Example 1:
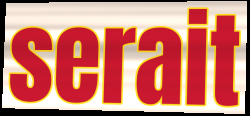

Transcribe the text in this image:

serait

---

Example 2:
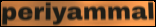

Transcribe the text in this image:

periyammal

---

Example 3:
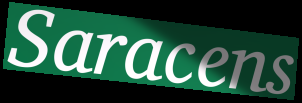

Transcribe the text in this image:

Saracens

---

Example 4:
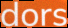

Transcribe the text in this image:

dors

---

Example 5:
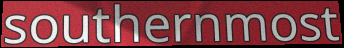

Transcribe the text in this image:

southernmost